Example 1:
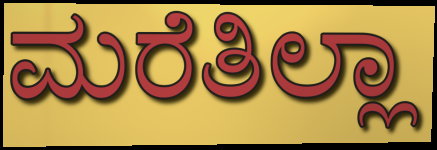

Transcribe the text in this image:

ಮರೆತಿಲ್ಲಾ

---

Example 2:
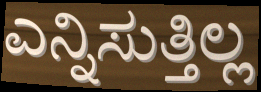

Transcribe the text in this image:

ಎನ್ನಿಸುತ್ತಿಲ್ಲ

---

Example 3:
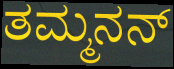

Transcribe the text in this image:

ತಮ್ಮನನ್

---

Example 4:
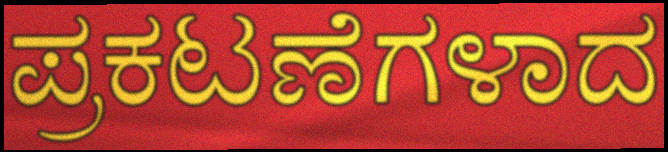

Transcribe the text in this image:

ಪ್ರಕಟಣೆಗಳಾದ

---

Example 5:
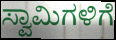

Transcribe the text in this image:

ಸ್ವಾಮಿಗಳಿಗೆ